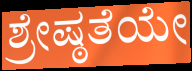
ಶ್ರೇಷ್ಠತೆಯೇ